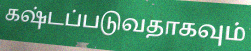
கஷ்டப்படுவதாகவும்